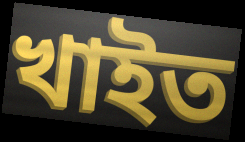
খাইত